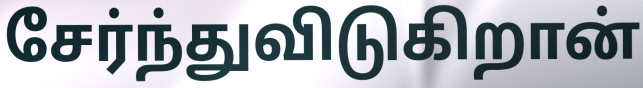
சேர்ந்துவிடுகிறான்